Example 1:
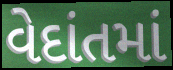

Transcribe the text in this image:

વેદાંતમાં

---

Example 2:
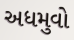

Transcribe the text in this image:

અધમુવો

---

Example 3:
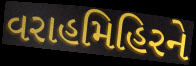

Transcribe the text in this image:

વરાહમિહિરને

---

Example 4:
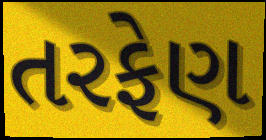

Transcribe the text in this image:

તરફેણ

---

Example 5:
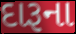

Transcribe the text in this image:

દારૂના